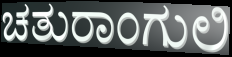
ಚತುರಾಂಗುಲಿ